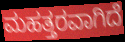
ಮಹತ್ತರವಾಗಿದೆ